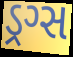
ડ્રગ્સ